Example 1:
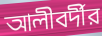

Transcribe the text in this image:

আলীবর্দীর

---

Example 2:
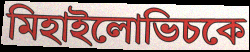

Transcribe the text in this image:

মিহাইলোভিচকে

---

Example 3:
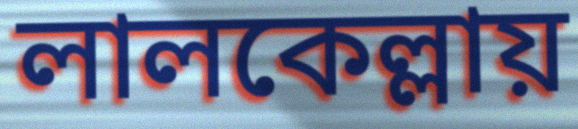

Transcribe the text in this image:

লালকেল্লায়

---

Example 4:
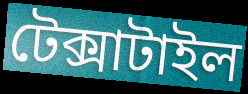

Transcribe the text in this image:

টেক্সাটাইল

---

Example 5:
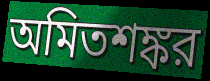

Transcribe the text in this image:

অমিতশঙ্কর